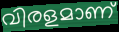
വിരളമാണ്